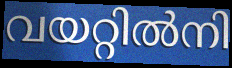
വയറ്റിൽനി